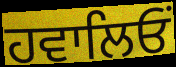
ਹਵਾਲਿਓਂ